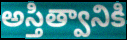
అస్తిత్వానికి